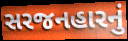
સરજનહારનું